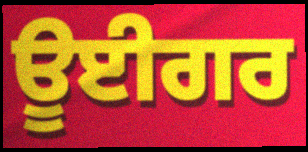
ਊਈਗਰ